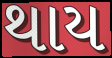
થાય